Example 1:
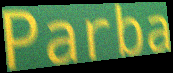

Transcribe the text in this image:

Parba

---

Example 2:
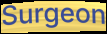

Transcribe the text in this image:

Surgeon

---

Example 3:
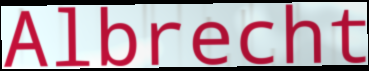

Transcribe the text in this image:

Albrecht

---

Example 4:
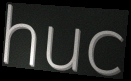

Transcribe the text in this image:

huc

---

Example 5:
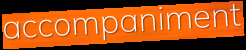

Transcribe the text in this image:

accompaniment